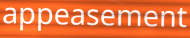
appeasement